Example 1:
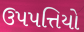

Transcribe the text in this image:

ઉપપત્તિયો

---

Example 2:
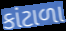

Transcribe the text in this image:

કાંટાળા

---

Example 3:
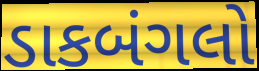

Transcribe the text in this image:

ડાકબંગલો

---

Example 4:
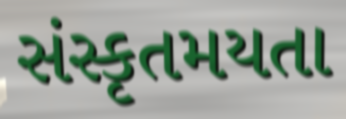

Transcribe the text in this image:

સંસ્કૃતમયતા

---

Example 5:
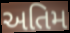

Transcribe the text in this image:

અતિમ